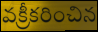
వక్రీకరించిన